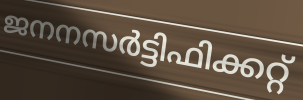
ജനനസർട്ടിഫിക്കറ്റ്